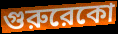
গুরুরেকো